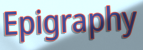
Epigraphy